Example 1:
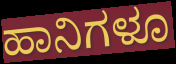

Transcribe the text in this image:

ಹಾನಿಗಳೂ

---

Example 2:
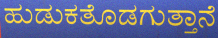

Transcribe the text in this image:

ಹುಡುಕತೊಡಗುತ್ತಾನೆ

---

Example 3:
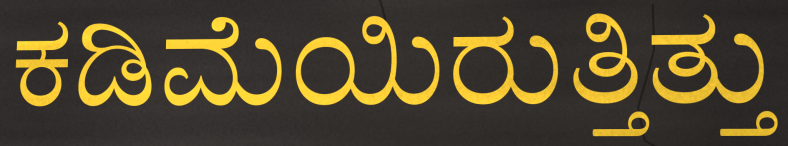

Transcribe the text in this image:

ಕಡಿಮೆಯಿರುತ್ತಿತ್ತು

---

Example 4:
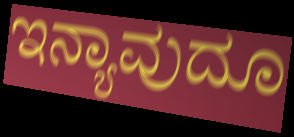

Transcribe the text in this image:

ಇನ್ಯಾವುದೂ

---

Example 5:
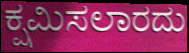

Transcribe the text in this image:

ಕ್ಷಮಿಸಲಾರದು